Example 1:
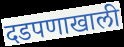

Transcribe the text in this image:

दडपणाखाली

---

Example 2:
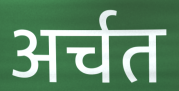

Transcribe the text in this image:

अर्चत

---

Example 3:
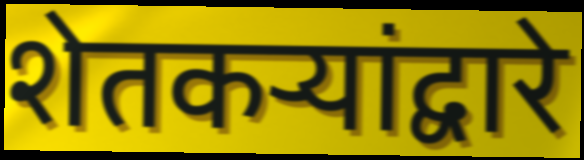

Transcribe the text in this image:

शेतकऱ्यांद्वारे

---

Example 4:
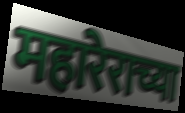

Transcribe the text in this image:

महारेराच्या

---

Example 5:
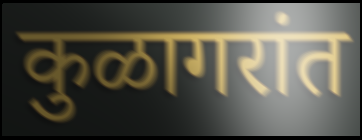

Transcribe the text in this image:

कुळागरांत